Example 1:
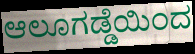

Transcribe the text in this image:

ಆಲೂಗಡ್ಡೆಯಿಂದ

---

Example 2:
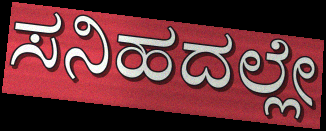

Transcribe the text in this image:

ಸನಿಹದಲ್ಲೇ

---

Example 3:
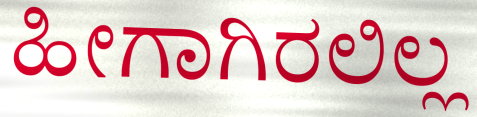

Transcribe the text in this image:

ಹೀಗಾಗಿರಲಿಲ್ಲ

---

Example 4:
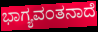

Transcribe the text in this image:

ಭಾಗ್ಯವಂತನಾದೆ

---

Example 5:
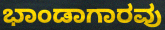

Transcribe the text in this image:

ಭಾಂಡಾಗಾರವು